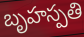
బృహస్పతి